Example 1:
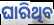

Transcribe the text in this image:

ଘାରିଥିବ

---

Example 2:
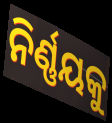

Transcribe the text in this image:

ନିର୍ଣ୍ଣୟକୁ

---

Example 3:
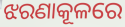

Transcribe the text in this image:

ଝରଣାକୂଳରେ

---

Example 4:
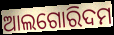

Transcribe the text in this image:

ଆଲଗୋରିଦମ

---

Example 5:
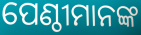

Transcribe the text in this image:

ପେଣ୍ଠୀମାନଙ୍କ